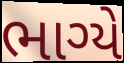
ભાગ્યે